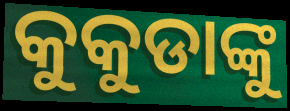
କୁକୁଡାଙ୍କୁ